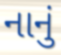
નાનું